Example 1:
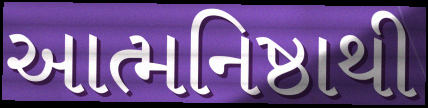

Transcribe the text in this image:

આત્મનિષ્ઠાથી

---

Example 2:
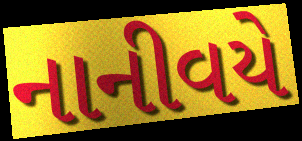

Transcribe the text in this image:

નાનીવયે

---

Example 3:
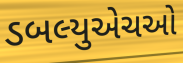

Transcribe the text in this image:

ડબલ્યુએચઓ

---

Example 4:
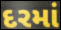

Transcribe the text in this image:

દરમાં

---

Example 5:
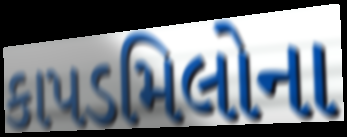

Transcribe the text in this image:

કાપડમિલોના